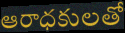
ఆరాధకులతో